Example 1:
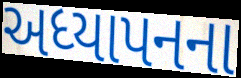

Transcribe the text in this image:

અધ્યાપનના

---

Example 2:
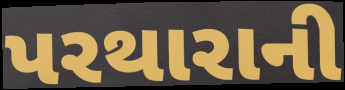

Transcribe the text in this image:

પરથારાની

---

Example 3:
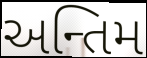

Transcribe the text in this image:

અન્તિમ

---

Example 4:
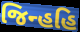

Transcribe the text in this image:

જિન્હહિ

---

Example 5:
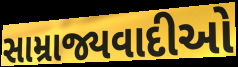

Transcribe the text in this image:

સામ્રાજ્યવાદીઓ